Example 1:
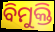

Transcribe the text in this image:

ବିମୁକ୍ତି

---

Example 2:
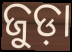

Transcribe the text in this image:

ଜୁଡ଼ା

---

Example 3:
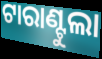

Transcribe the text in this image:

ଟାରାଣ୍ଟୁଲା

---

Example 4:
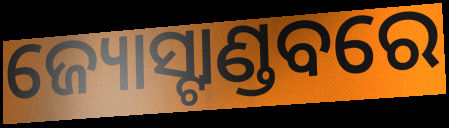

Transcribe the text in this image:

ଜ୍ୟୋସ୍ଟାଣ୍ଡବରେ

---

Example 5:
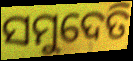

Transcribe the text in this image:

ସମୁଦେତି